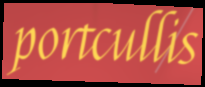
portcullis